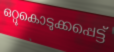
ഒറ്റുകൊടുക്കപ്പെട്ട്